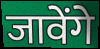
जावेंगे